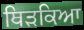
ਥਿੜਕਿਆ